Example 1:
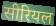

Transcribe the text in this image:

सीरियल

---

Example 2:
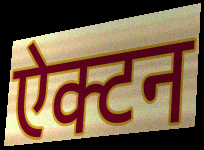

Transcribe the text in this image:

ऐक्टन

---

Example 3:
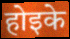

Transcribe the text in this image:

होइके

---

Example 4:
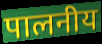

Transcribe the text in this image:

पालनीय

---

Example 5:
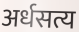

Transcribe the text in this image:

अर्धसत्य